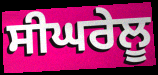
ਸੀਘਰੇਲੂ